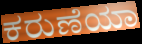
ಕರುಣೆಯಾ